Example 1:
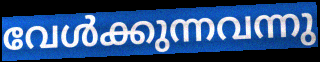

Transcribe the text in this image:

വേൾക്കുന്നവന്നു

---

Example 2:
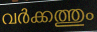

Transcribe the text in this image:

വർക്കത്തും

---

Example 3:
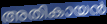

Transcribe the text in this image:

അതികായൻ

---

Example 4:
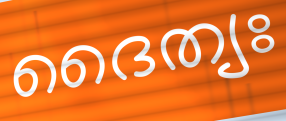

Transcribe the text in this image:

ദൈത്യഃ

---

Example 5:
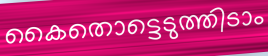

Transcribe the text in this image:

കൈതൊട്ടെടുത്തിടാം